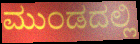
ಮುಂಡದಲ್ಲಿ